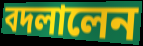
বদলালেন